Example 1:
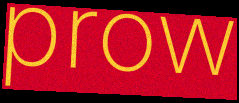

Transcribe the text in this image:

prow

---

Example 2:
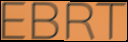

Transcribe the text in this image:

EBRT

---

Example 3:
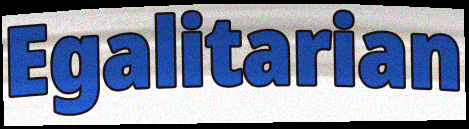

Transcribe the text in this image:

Egalitarian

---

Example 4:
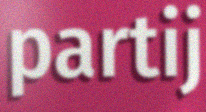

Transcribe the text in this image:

partij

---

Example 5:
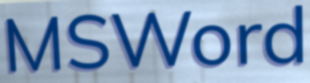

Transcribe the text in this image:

MSWord